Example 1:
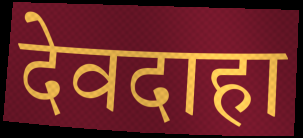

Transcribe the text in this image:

देवदाहा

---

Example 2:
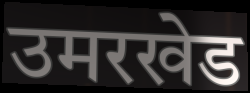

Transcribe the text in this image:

उमरखेड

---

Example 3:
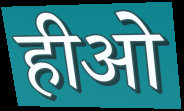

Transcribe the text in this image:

हीओ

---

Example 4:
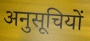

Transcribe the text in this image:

अनुसूचियों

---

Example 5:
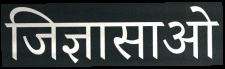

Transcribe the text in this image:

जिज्ञासाओ